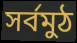
সৰ্বমুঠ